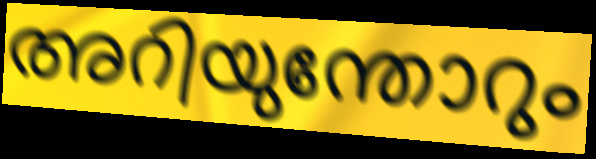
അറിയുന്തോറും